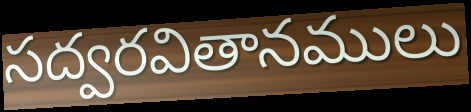
సద్వరవితానములు